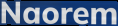
Naorem